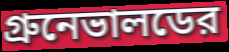
গ্রুনেভালডের